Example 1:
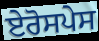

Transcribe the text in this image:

ਏਰੋਸਪੇਸ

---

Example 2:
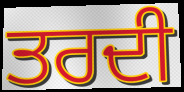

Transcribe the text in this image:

ਤਰਦੀ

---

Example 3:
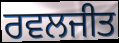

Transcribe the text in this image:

ਰਵਲਜੀਤ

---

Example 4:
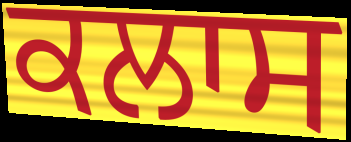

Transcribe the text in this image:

ਕਲਾਸ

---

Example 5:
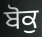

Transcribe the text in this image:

ਬੋਕੁ